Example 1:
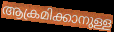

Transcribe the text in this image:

ആക്രമിക്കാനുള്ള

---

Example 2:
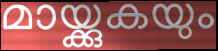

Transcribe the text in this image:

മായ്ക്കുകയും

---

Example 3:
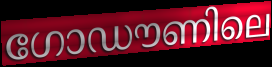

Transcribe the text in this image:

ഗോഡൗണിലെ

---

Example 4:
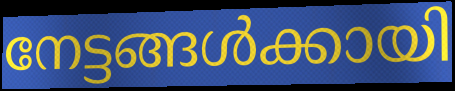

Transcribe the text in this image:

നേട്ടങ്ങൾക്കായി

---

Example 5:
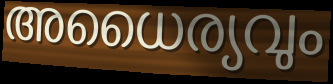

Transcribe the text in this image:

അധൈര്യവും